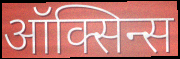
ऑक्सिन्स